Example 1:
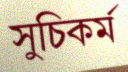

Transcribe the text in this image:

সুচিকর্ম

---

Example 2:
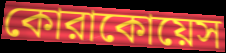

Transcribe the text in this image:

কোরাকোয়েস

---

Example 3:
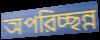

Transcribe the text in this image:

অপরিচ্ছন্ন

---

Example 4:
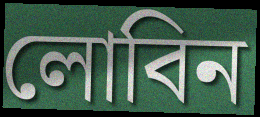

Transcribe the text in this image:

লোবিন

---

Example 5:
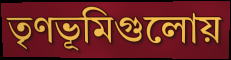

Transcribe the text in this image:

তৃণভূমিগুলোয়